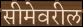
सीमेवरील